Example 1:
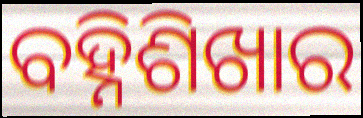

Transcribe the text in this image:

ବହ୍ନିଶିଖାର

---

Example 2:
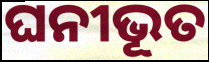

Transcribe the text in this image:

ଘନୀଭୂତ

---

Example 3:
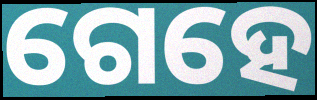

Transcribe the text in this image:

ଗେହେ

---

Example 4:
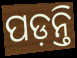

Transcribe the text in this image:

ପଡ଼ନ୍ତି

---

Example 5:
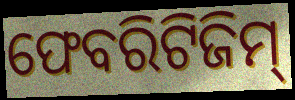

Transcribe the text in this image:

ଫେବରିଟିଜିମ୍